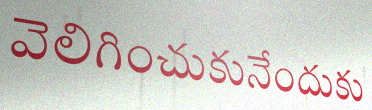
వెలిగించుకునేందుకు